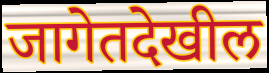
जागेतदेखील